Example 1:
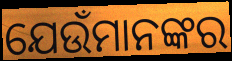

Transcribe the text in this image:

ଯେଉଁମାନଙ୍କର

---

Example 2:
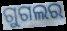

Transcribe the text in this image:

ଗୁଗଲର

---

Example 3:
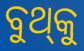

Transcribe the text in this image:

ବୁଥ୍‌କୁ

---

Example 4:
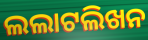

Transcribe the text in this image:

ଲଲାଟଲିଖନ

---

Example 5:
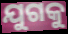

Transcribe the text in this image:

ଯୁଗକୁ